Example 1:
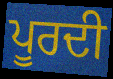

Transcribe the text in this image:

ਪੂਰਦੀ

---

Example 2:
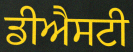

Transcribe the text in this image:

ਡੀਐਸਟੀ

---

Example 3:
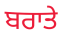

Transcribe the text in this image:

ਬਰਾਤੇ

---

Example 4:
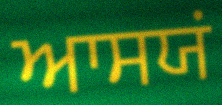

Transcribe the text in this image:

ਆਸਯਂ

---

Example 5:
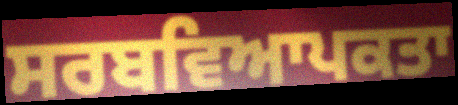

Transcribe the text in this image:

ਸਰਬਵਿਆਪਕਤਾ